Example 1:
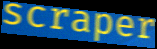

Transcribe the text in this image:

scraper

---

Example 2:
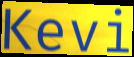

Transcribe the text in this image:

Kevi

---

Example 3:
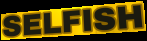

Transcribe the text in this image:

SELFISH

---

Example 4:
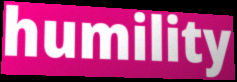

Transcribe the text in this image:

humility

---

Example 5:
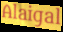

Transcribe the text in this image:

Alaigal